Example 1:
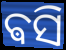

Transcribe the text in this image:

ଵସି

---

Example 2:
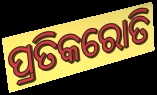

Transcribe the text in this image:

ପ୍ରତିକରୋତି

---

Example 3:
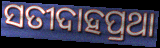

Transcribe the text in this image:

ସତୀଦାହପ୍ରଥା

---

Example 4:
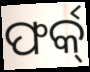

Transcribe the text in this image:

ଫର୍କ୍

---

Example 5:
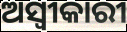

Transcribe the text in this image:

ଅସ୍ଵୀକାରୀ